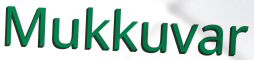
Mukkuvar